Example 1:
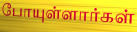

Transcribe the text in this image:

போயுள்ளார்கள்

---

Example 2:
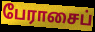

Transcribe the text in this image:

பேராசைப்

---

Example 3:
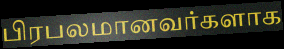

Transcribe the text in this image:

பிரபலமானவர்களாக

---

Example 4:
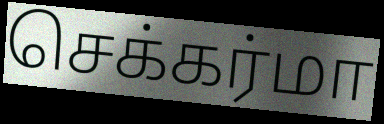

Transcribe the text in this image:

செக்கர்மா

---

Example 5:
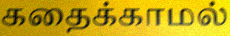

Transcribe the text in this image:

கதைக்காமல்